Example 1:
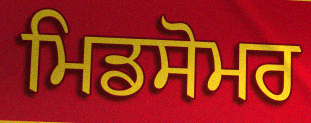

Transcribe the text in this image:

ਮਿਡਸੋਮਰ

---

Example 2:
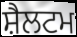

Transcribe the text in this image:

ਸ਼ੈਲਟਮ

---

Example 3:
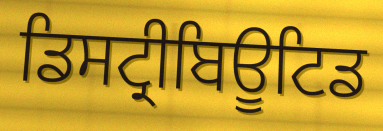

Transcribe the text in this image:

ਡਿਸਟ੍ਰੀਬਿਊਟਿਡ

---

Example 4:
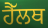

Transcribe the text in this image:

ਹੈੱਲਥ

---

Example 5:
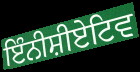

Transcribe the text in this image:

ਇੰਨੀਸ਼ੀਏਟਿਵ